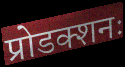
प्रोडक्शनः